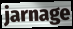
jarnage